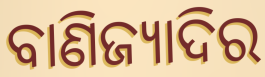
ବାଣିଜ୍ୟାଦିର